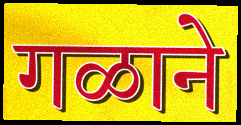
गळाने